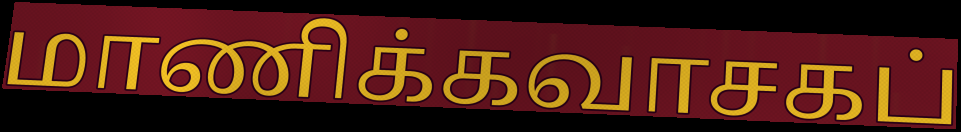
மாணிக்கவாசகப்